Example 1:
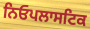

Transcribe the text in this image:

ਨਿਓਪਲਾਸਟਿਕ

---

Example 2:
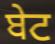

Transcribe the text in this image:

ਬੇਟ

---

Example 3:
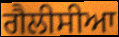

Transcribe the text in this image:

ਗੈਲੀਸੀਆ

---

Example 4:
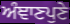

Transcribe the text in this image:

ਅੰਞਾਣਪੁਣੇ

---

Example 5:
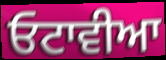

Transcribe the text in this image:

ਓਟਾਵੀਆ